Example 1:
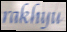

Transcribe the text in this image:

rakhyu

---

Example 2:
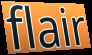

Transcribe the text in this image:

flair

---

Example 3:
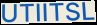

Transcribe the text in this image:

UTIITSL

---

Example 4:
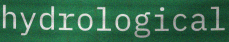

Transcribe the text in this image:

hydrological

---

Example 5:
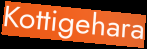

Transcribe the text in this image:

Kottigehara